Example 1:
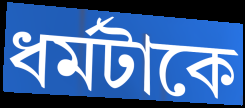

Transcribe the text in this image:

ধর্মটাকে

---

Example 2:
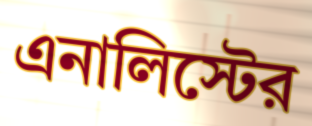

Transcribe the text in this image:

এনালিস্টের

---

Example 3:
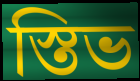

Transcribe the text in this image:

স্তিভ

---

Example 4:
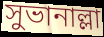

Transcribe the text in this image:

সুভানাল্লা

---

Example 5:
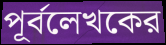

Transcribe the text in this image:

পূর্বলেখকের